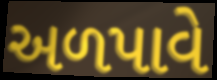
અળપાવે